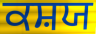
ਕਸ਼ਯ